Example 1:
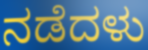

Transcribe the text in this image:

ನಡೆದಳು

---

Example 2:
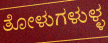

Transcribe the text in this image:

ತೋಳುಗಳುಳ್ಳ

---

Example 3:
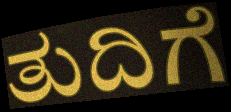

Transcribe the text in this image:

ತುದಿಗೆ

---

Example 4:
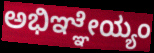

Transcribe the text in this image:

ಅಭಿಞ್ಞೇಯ್ಯಂ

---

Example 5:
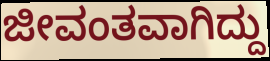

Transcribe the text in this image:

ಜೀವಂತವಾಗಿದ್ದು